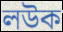
লউক